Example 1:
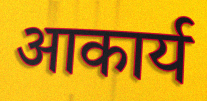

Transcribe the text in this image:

आकार्य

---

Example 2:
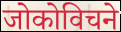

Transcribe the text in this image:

जोकोविचने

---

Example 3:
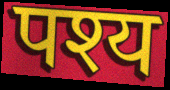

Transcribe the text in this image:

पश्य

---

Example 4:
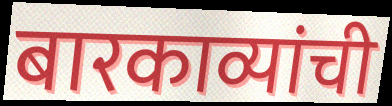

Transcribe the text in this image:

बारकाव्यांची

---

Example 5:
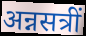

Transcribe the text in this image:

अन्नसत्रीं